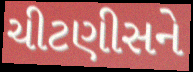
ચીટણીસને